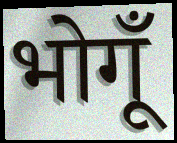
भोगूँ